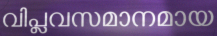
വിപ്ലവസമാനമായ